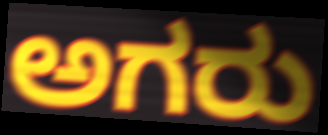
ಅಗರು